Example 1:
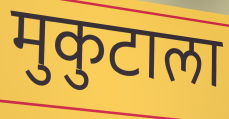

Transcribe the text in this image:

मुकुटाला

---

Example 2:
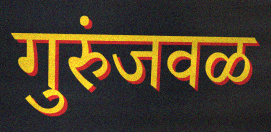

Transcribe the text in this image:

गुरुंजवळ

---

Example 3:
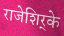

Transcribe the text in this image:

राजेशिर्के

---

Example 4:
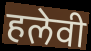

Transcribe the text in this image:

हलेवी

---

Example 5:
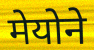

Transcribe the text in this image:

मेयोने